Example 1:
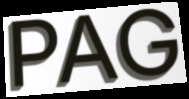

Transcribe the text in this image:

PAG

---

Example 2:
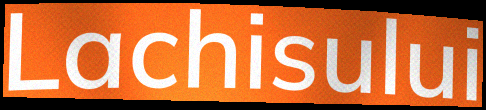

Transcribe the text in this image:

Lachisului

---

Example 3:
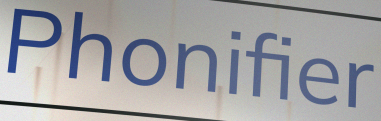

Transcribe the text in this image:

Phonifier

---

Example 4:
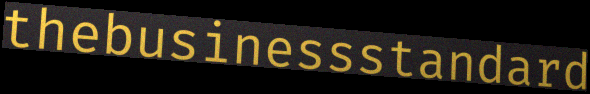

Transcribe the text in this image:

thebusinessstandard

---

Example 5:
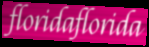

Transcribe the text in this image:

floridaflorida